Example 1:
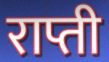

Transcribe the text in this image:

राप्ती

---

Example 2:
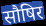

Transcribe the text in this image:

सौषिर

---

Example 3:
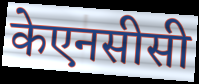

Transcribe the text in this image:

केएनसीसी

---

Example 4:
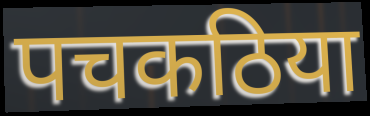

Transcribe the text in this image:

पचकठिया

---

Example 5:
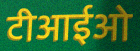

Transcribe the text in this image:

टीआईओ